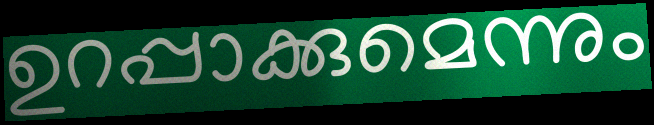
ഉറപ്പാക്കുമെന്നും